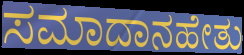
ಸಮಾದಾನಹೇತು